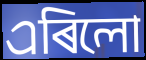
এৰিলো